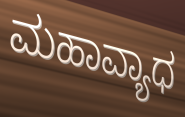
ಮಹಾವ್ಯಾಧ